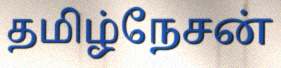
தமிழ்நேசன்